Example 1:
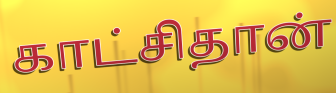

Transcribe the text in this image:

காட்சிதான்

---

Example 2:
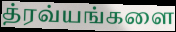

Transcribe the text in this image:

த்ரவ்யங்களை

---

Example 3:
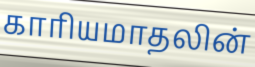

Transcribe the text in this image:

காரியமாதலின்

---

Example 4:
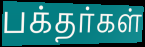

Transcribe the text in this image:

பக்தர்கள்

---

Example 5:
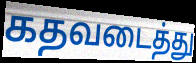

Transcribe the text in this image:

கதவடைத்து